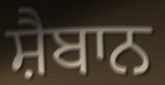
ਸ਼ੈਬਾਨ